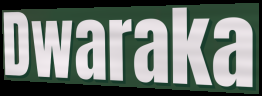
Dwaraka